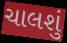
ચાલશું